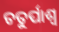
ଚତୁର୍ପାଶ୍ୱ